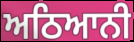
ਅਠਿਆਨੀ